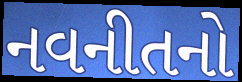
નવનીતનો